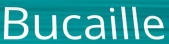
Bucaille